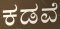
ಕಡವೆ